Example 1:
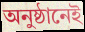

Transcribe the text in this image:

অনুষ্ঠানেই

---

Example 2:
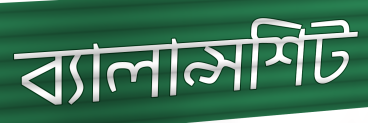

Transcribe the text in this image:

ব্যালান্সশিট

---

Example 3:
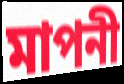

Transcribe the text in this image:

মাপনী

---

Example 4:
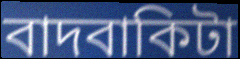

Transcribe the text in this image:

বাদবাকিটা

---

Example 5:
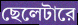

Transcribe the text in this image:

ছেলেটারে